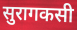
सुरागकसी